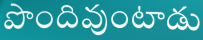
పొందివుంటాడు